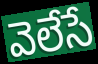
వెలేసే